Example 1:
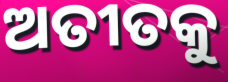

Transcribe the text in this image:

ଅତୀତକୁ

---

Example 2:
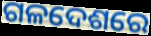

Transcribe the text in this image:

ଗଳଦେଶରେ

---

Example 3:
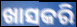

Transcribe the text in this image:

ଖାସକରି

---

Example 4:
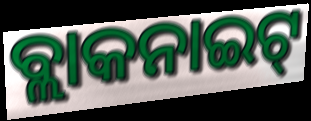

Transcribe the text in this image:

ବ୍ଲାକନାଇଟ୍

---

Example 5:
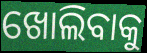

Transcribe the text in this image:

ଖୋଲିବାକୁ